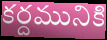
కర్దమునికి